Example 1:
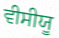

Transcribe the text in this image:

ਵੀਸੀਯੂ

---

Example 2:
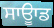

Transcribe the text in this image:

ਸਾਊਾਡ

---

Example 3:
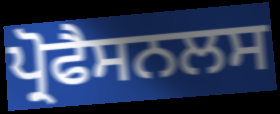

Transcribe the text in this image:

ਪ੍ਰੋਫੈਸਨਲਸ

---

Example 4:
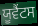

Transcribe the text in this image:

ਯੂਵੈਂਟਸ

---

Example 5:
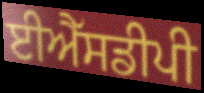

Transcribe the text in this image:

ਈਐੱਸਡੀਪੀ